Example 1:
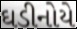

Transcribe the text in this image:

ઘડીનોયે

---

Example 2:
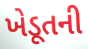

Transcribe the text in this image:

ખેડૂતની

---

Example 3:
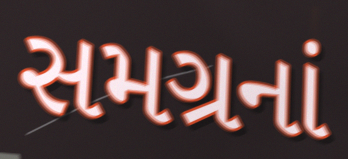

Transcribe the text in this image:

સમગ્રનાં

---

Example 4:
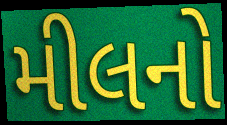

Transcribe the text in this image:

મીલનો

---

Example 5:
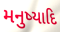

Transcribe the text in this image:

મનુષ્યાદિ